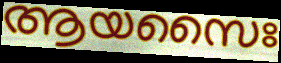
ആയസൈഃ